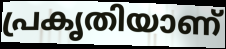
പ്രകൃതിയാണ്